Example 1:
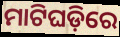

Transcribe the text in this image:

ମାଟିଘଡ଼ିରେ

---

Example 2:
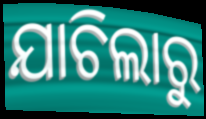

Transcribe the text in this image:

ଯାଚିଲାରୁ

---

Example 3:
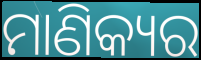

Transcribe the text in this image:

ମାଣିକ୍ୟର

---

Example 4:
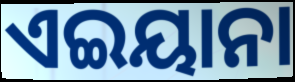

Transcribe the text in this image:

ଏଇୟାନା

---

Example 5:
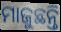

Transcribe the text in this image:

ମାଜୁଛନ୍ତି